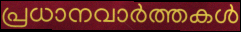
പ്രധാനവാർത്തകൾ